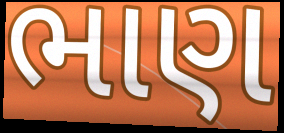
ભાણ